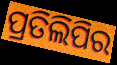
ପ୍ରତିଲିପିର